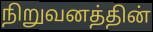
நிறுவனத்தின்